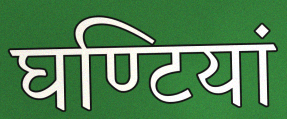
घण्टियां